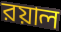
রয়াল